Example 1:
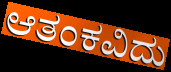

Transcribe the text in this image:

ಆತಂಕವಿದು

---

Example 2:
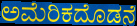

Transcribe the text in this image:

ಅಮೆರಿಕದೊಡನೆ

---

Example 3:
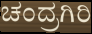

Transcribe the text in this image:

ಚಂದ್ರಗಿರಿ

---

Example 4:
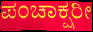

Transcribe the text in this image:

ಪಂಚಾಕ್ಷರೀ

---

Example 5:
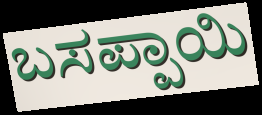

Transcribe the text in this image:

ಬಸಪ್ಪಾಯಿ